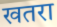
खतरा